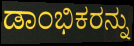
ಡಾಂಭಿಕರನ್ನು